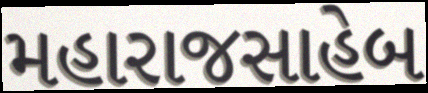
મહારાજસાહેબ